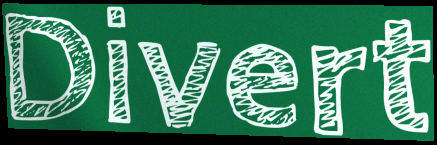
Divert